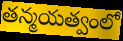
తన్మయత్వంలో